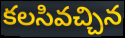
కలసివచ్చిన